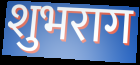
शुभराग